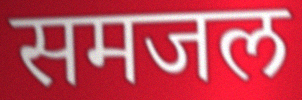
समजल